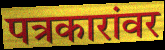
पत्रकारांवर